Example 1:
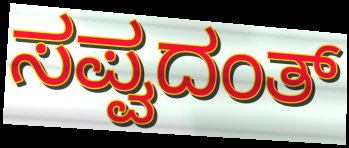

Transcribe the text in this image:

ಸಪ್ವದಂತ್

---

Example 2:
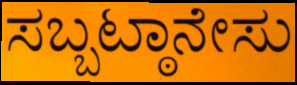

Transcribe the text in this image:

ಸಬ್ಬಟ್ಠಾನೇಸು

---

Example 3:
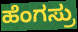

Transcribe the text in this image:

ಹೆಂಗಸ್ರು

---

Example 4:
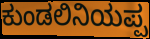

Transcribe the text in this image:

ಕುಂಡಲಿನಿಯಪ್ಪ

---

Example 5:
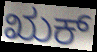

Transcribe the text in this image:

ಋಕ್